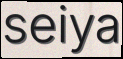
seiya